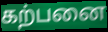
கற்பனை